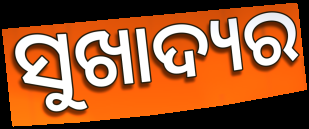
ସୁଖାଦ୍ୟର